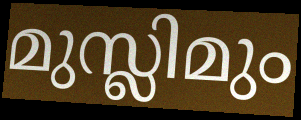
മുസ്ലിമും